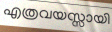
എത്രവയസ്സായി